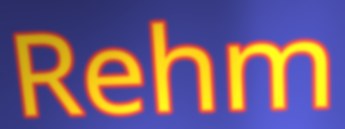
Rehm